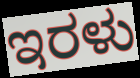
ಇರಳು